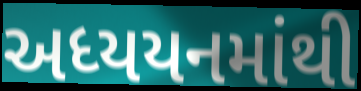
અધ્યયનમાંથી